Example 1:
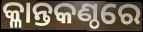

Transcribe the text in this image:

କ୍ଳାନ୍ତକଣ୍ଠରେ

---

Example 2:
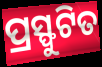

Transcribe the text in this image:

ପ୍ରସ୍ଫୁଟିତ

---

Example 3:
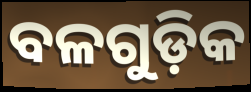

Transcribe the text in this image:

ବଳଗୁଡ଼ିକ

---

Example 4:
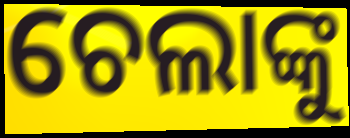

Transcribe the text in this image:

ଚେଲାଙ୍କୁ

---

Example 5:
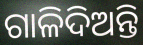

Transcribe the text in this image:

ଗାଳିଦିଅନ୍ତି